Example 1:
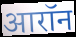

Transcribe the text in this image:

आरॉन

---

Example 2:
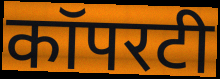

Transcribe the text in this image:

कॉपरटी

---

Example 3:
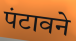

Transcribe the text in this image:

पंटावने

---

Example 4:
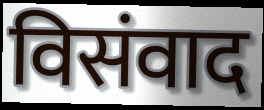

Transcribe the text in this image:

विसंवाद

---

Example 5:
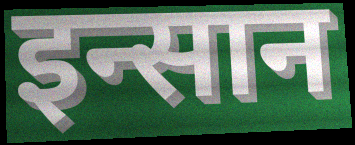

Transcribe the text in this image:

इन्सान